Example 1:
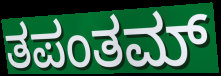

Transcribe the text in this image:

ತಪಂತಮ್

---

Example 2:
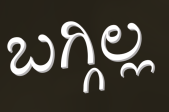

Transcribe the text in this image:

ಬಗ್ಗಿಲ್ಲ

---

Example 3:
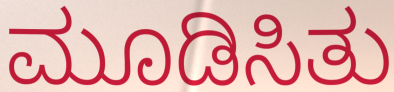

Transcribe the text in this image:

ಮೂಡಿಸಿತು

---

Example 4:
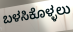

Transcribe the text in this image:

ಬಳಸಿಕೊಳ್ಳಲು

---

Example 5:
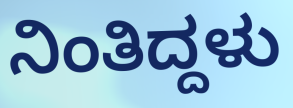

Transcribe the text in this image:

ನಿಂತಿದ್ದಳು